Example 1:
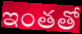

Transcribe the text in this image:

ఇంతతో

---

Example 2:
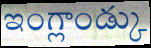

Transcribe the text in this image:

ఇంగ్లాండ్కు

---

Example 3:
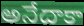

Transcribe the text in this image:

అనేదాకా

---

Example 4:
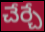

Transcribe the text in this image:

చేర్చే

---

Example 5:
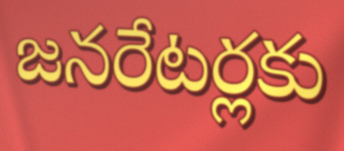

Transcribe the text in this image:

జనరేటర్లకు